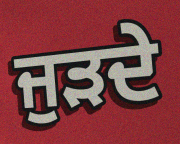
ਜੁੜਦੇ